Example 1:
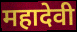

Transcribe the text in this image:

महादेवी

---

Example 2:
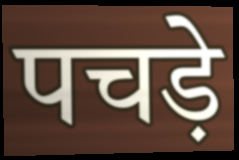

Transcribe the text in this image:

पचड़े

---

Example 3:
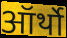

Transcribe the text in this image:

ऑर्थो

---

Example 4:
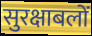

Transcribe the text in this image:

सुरक्षाबलों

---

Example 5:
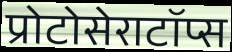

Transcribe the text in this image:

प्रोटोसेराटॉप्स